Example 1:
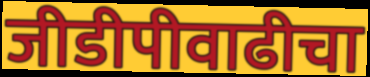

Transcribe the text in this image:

जीडीपीवाढीचा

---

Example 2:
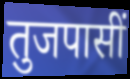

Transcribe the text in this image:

तुजपासीं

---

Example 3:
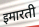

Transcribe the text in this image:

इमारती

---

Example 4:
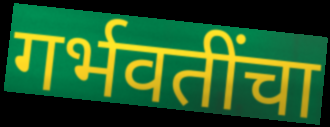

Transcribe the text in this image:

गर्भवतींचा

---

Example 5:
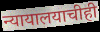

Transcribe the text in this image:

न्यायालयाचीही